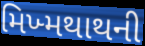
મિખ્મથાથની